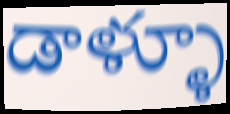
డాళ్ళూ